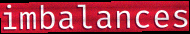
imbalances